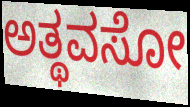
ಅತ್ಥವಸೋ